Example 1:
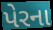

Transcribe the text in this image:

પેરના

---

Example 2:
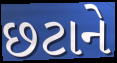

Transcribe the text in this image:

છટાને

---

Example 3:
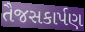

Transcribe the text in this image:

તૈજસકાર્પણ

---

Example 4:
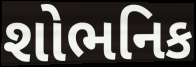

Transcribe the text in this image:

શોભનિક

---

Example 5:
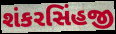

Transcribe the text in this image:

શંકરસિંહજી